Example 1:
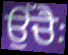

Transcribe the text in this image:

ਉੱਚੈਃ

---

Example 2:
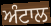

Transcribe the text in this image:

ਅੰਟਾਲ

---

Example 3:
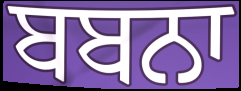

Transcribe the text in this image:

ਬਬਨਾ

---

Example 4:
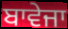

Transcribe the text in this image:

ਬਾਵੇਜਾ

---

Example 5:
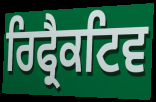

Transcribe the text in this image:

ਰਿਫ੍ਰੈਕਟਿਵ